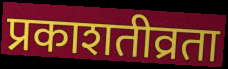
प्रकाशतीव्रता